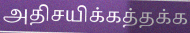
அதிசயிக்கத்தக்க